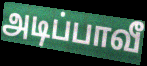
அடிப்பாவீ